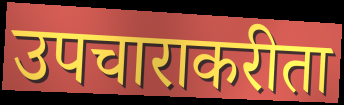
उपचाराकरीता